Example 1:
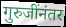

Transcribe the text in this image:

गुरुजींनंतर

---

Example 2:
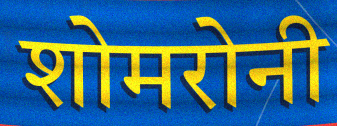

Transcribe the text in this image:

शोमरोनी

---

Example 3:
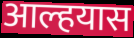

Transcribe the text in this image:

आल्हयास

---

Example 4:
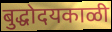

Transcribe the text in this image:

बुद्धोदयकाळी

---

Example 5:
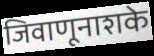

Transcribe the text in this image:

जिवाणूनाशके